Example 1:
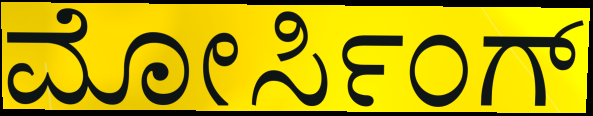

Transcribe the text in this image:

ಮೋರ್ಸಿಂಗ್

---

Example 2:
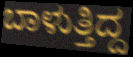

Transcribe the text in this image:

ಬಾಳುತ್ತಿದ್ದ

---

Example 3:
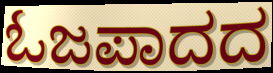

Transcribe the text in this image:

ಓಜಪಾದದ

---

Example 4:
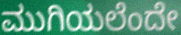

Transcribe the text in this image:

ಮುಗಿಯಲೆಂದೇ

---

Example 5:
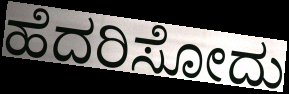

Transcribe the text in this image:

ಹೆದರಿಸೋದು